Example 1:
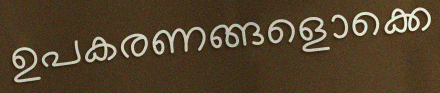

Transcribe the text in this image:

ഉപകരണങ്ങളൊക്കെ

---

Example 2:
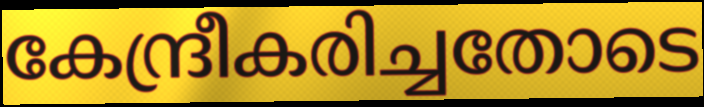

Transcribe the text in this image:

കേന്ദ്രീകരിച്ചതോടെ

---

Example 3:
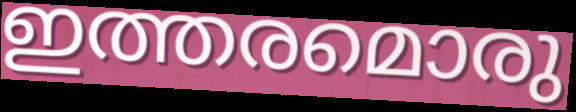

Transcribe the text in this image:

ഇത്തരമൊരു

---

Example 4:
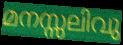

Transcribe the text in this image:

മനസ്സലിവു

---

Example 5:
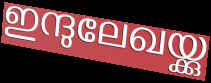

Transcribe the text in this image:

ഇന്ദുലേഖയ്ക്കു